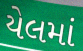
યેલમાં